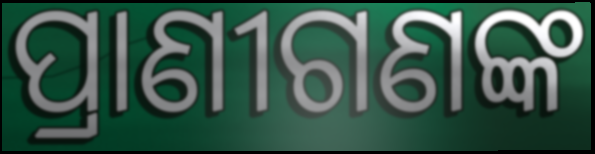
ପ୍ରାଣୀଗଣଙ୍କ